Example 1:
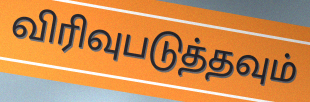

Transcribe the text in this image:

விரிவுபடுத்தவும்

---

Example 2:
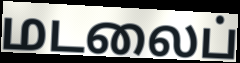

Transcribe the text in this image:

மடலைப்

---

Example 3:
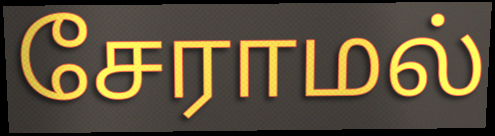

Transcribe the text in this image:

சேராமல்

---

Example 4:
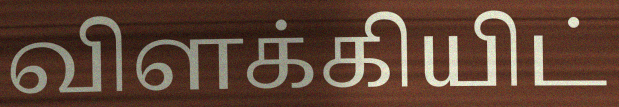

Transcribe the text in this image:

விளக்கியிட்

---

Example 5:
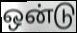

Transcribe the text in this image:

ஒன்டு